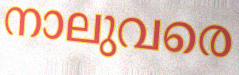
നാലുവരെ